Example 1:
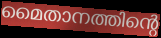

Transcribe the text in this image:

മൈതാനത്തിന്റെ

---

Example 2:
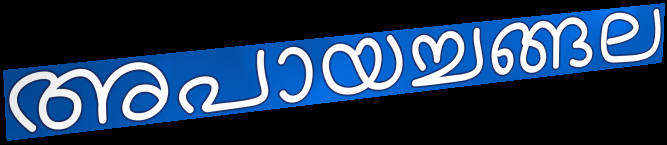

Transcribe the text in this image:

അപായച്ചങ്ങല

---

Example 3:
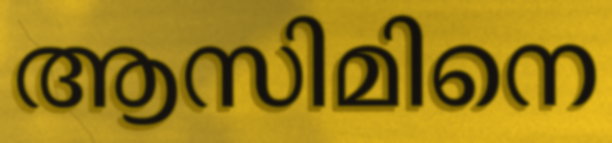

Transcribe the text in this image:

ആസിമിനെ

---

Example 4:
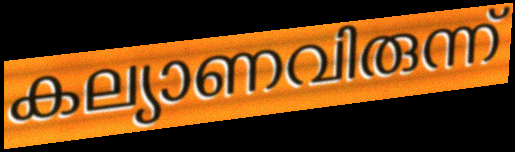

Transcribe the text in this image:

കല്യാണവിരുന്ന്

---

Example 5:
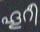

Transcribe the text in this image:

ഹൂറീ